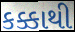
કક્કાથી